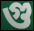
গু